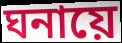
ঘনায়ে